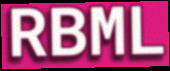
RBML